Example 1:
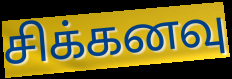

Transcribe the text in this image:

சிக்கனவு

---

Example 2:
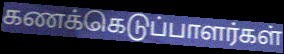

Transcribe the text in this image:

கணக்கெடுப்பாளர்கள்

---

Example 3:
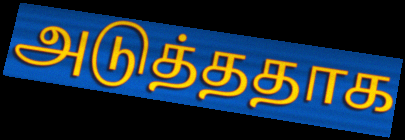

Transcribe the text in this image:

அடுத்ததாக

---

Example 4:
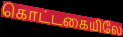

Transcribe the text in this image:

கொட்டகையிலே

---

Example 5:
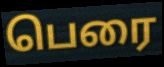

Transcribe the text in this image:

பெரை